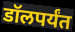
डॉलपर्यंत